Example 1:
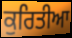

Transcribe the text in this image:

ਕੁਰਿਤੀਆ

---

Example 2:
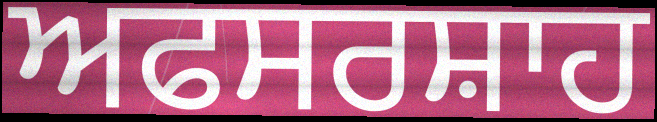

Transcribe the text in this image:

ਅਫਸਰਸ਼ਾਹ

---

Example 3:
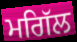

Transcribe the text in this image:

ਮਗਿੱਲ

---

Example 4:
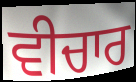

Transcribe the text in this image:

ਵੀਚਾਰ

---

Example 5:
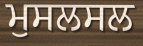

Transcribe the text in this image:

ਮੁਸਲਸਲ